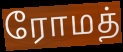
ரோமத்